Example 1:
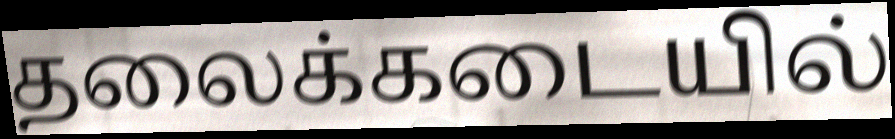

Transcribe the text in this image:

தலைக்கடையில்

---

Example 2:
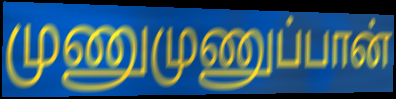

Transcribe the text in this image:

முணுமுணுப்பான்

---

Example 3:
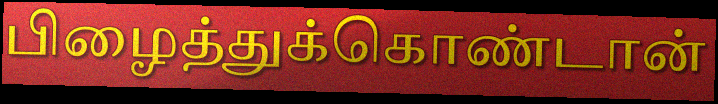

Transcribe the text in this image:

பிழைத்துக்கொண்டான்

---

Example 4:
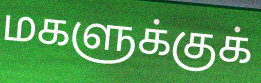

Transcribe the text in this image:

மகளுக்குக்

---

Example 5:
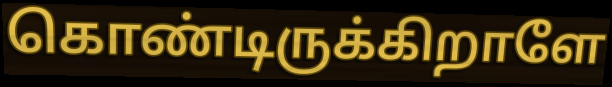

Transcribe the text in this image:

கொண்டிருக்கிறாளே